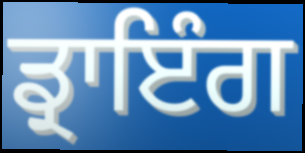
ਡ੍ਰਾਇੰਗ